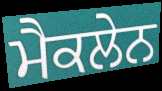
ਮੈਕਲੇਨ